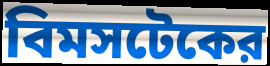
বিমসটেকের